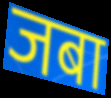
जबा